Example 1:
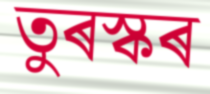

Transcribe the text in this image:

তুৰস্কৰ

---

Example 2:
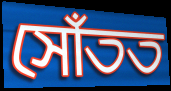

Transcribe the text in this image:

সোঁতত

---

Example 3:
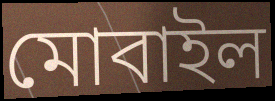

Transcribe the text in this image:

মোবাইল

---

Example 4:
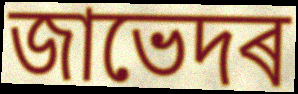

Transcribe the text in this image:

জাভেদৰ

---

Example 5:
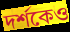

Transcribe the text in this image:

দৰ্শকেও